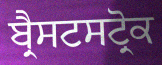
ਬ੍ਰੈਸਟਸਟ੍ਰੋਕ